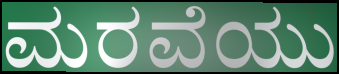
ಮರವೆಯು